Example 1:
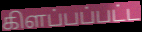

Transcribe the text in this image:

கிளப்பப்பட்ட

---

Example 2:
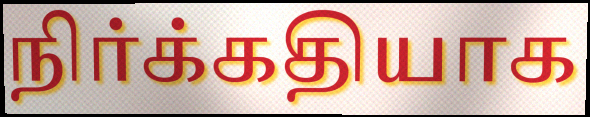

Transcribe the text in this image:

நிர்க்கதியாக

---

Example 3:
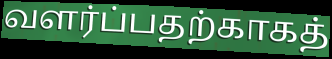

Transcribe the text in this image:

வளர்ப்பதற்காகத்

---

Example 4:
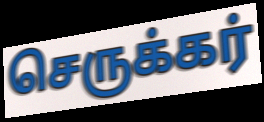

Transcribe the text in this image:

செருக்கர்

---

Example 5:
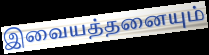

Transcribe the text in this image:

இவையத்தனையும்